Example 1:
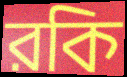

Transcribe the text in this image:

রকি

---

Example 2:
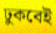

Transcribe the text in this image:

ঢুকবেই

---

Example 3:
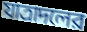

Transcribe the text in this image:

যাত্রাদলের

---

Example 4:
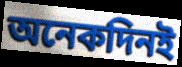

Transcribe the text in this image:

অনেকদিনই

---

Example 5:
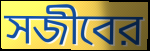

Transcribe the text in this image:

সজীবের